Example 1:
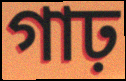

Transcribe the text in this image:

গাঢ়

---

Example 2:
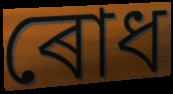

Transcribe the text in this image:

ৰোধ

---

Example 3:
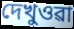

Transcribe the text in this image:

দেখুওৱা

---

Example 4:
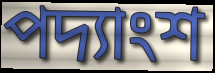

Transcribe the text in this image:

পদ্যাংশ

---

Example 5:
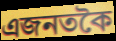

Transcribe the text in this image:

এজনতকৈ